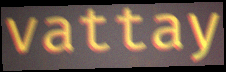
vattay